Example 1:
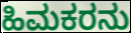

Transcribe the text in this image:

ಹಿಮಕರನು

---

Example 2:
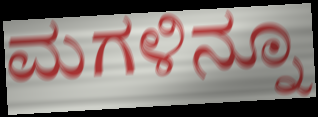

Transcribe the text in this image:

ಮಗಳಿನ್ನೂ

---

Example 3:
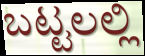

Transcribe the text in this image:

ಬಟ್ಟಲಲ್ಲಿ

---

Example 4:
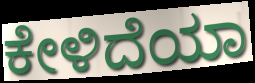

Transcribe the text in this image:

ಕೇಳಿದೆಯಾ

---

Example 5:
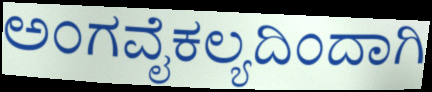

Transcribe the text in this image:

ಅಂಗವೈಕಲ್ಯದಿಂದಾಗಿ